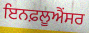
ਇਨਫ਼ਲੂਐਂਸਰ